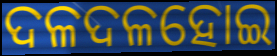
ଦଳଦଳହୋଇ